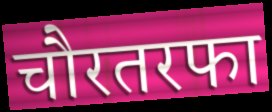
चौरतरफा